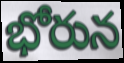
భోరున